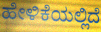
ಹೇಳಿಕೆಯಲ್ಲಿದೆ